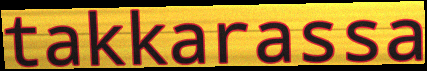
takkarassa